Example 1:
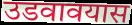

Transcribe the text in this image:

उडवावयास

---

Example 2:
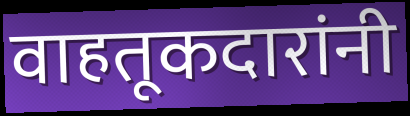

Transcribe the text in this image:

वाहतूकदारांनी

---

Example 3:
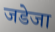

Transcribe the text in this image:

जडेजा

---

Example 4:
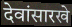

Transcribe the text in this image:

देवांसारखे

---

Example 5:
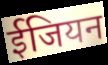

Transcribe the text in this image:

ईजियन